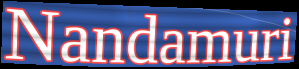
Nandamuri